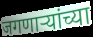
जगणाऱ्यांच्या